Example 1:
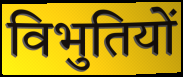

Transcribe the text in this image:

विभुतियों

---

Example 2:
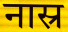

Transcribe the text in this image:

नास्र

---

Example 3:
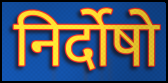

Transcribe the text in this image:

निर्दोषो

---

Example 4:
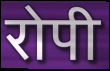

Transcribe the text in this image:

रोपी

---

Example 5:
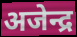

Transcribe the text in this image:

अजेन्द्र